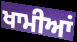
ਖਾਮੀਆਂ